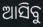
ଆସିବୁ